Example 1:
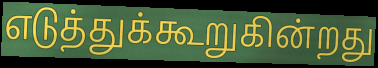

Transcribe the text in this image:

எடுத்துக்கூறுகின்றது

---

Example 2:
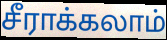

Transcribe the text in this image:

சீராக்கலாம்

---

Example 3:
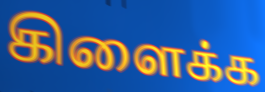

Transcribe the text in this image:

கிளைக்க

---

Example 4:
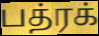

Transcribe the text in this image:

பத்ரக்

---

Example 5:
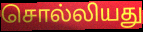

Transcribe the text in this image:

சொல்லியது